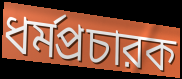
ধর্মপ্রচারক